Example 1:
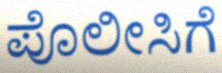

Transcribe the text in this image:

ಪೊಲೀಸಿಗೆ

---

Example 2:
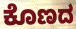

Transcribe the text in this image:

ಕೊಣದ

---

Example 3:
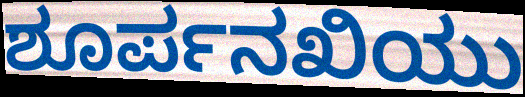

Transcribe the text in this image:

ಶೂರ್ಪನಖಿಯು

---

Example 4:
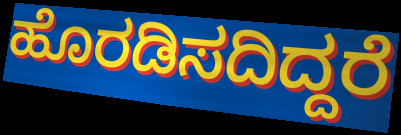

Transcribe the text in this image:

ಹೊರಡಿಸದಿದ್ದರೆ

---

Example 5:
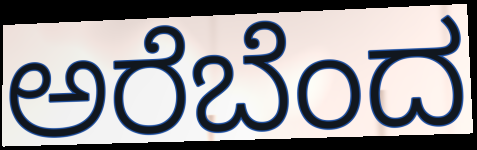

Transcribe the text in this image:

ಅರೆಬೆಂದ